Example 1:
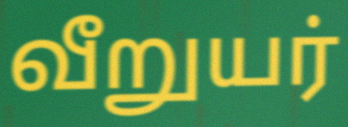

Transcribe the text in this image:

வீறுயர்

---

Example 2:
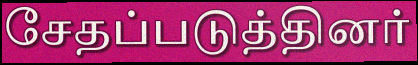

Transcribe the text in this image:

சேதப்படுத்தினர்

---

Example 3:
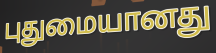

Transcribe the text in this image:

புதுமையானது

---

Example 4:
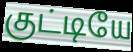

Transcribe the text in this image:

குட்டியே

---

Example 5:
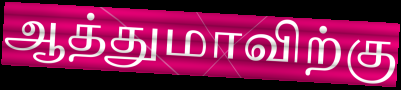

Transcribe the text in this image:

ஆத்துமாவிற்கு